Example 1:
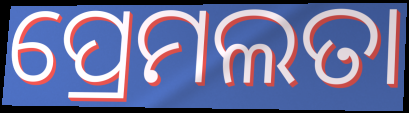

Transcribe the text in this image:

ପ୍ରେମଲତା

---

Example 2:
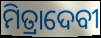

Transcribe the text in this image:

ମିତ୍ରାଦେବୀ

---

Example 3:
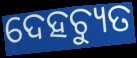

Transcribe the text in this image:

ଦେହଚ୍ୟୁତ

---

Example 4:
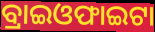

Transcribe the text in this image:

ବ୍ରାଇଓଫାଇଟା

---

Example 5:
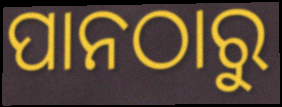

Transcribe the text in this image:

ପାନଠାରୁ